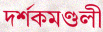
দর্শকমণ্ডলী